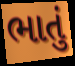
ભાતું